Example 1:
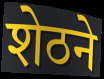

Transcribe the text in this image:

शेठने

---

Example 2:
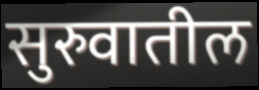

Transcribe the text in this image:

सुरुवातील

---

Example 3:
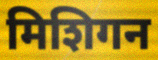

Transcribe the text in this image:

मिशिगन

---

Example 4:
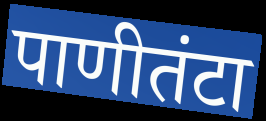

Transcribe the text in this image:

पाणीतंटा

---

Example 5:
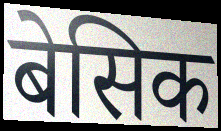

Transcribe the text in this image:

बेसिक